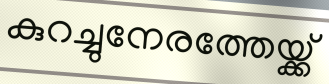
കുറച്ചുനേരത്തേയ്ക്ക്